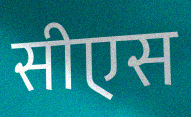
सीएस